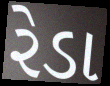
રેડા